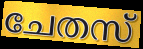
ചേതസ്